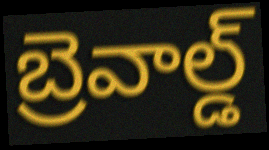
బ్రెవాల్డ్